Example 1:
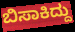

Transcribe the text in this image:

ಬಿಸಾಕಿದ್ದು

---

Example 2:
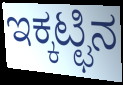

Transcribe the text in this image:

ಇಕ್ಕಟ್ಟಿನ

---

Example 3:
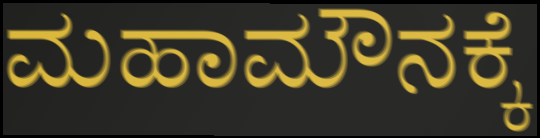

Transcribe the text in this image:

ಮಹಾಮೌನಕ್ಕೆ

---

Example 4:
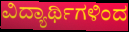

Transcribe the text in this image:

ವಿದ್ಯಾರ್ಥಿಗಳಿಂದ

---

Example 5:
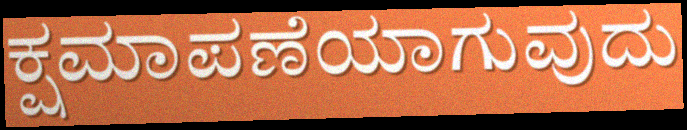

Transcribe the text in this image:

ಕ್ಷಮಾಪಣೆಯಾಗುವುದು